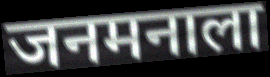
जनमनाला